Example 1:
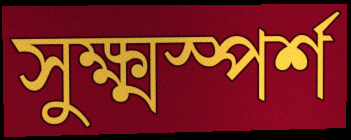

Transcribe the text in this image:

সুক্ষ্মস্পর্শ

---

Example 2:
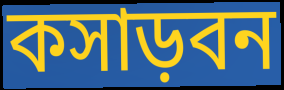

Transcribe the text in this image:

কসাড়বন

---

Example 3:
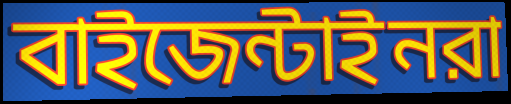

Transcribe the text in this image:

বাইজেন্টাইনরা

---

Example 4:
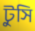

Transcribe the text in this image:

টুসি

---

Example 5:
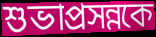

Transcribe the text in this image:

শুভাপ্রসন্নকে